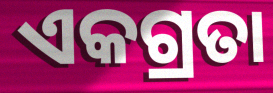
ଏକଗ୍ରତା